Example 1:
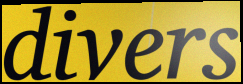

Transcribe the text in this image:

divers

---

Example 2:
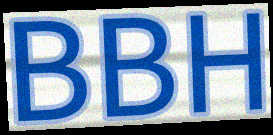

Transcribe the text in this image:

BBH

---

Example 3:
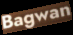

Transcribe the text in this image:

Bagwan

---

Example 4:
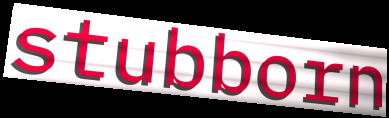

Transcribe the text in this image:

stubborn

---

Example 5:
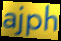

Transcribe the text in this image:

ajph